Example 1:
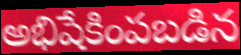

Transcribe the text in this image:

అభిషేకింపబడిన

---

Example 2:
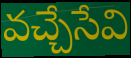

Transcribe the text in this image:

వచ్చేసేవి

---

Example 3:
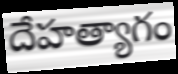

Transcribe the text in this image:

దేహత్యాగం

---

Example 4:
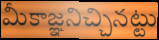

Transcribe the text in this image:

మీకాజ్ఞనిచ్చినట్టు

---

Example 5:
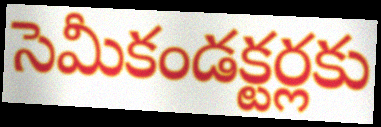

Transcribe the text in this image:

సెమీకండక్టర్లకు